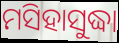
ମସିହାସୁଦ୍ଧା